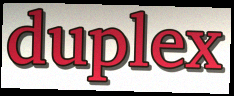
duplex